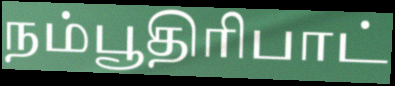
நம்பூதிரிபாட்